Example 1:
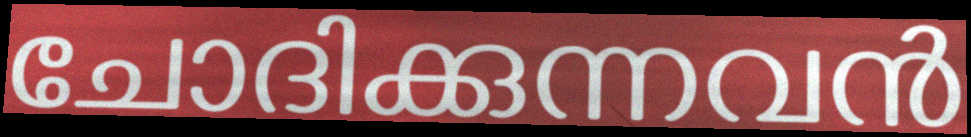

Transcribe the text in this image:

ചോദിക്കുന്നവൻ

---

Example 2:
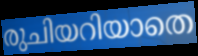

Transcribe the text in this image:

രുചിയറിയാതെ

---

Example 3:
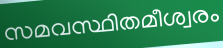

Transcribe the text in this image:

സമവസ്ഥിതമീശ്വരം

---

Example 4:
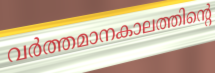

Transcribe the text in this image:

വർത്തമാനകാലത്തിന്റെ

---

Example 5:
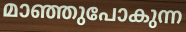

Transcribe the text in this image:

മാഞ്ഞുപോകുന്ന